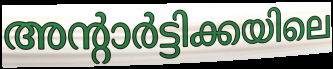
അന്റാർട്ടിക്കയിലെ